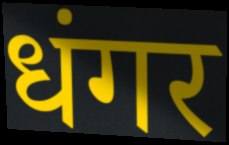
धंगर